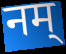
नम्